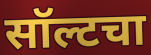
सॉल्टचा